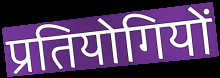
प्रतियोगियों